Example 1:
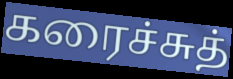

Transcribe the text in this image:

கரைச்சுத்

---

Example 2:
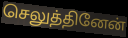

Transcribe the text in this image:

செலுத்தினேன்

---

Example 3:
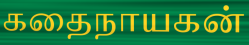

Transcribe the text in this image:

கதைநாயகன்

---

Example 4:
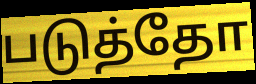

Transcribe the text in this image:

படுத்தோ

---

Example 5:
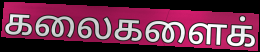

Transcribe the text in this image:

கலைகளைக்